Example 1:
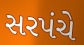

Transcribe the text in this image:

સરપંચે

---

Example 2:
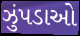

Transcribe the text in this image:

ઝુંપડાઓ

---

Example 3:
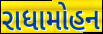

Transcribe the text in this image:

રાધામોહન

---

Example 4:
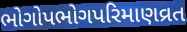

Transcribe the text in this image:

ભોગોપભોગપરિમાણવ્રત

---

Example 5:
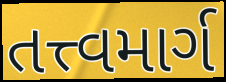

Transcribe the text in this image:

તત્ત્વમાર્ગ